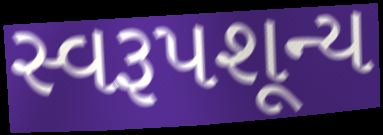
સ્વરૂપશૂન્ય